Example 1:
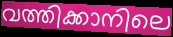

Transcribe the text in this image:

വത്തിക്കാനിലെ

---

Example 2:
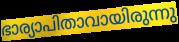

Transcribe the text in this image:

ഭാര്യാപിതാവായിരുന്നു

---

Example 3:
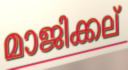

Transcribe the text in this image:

മാജിക്കല്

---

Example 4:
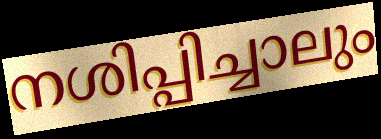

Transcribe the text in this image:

നശിപ്പിച്ചാലും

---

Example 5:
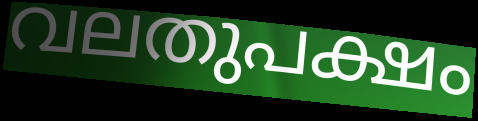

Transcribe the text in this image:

വലതുപക്ഷം